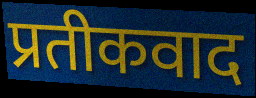
प्रतीकवाद